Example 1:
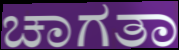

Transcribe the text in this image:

ಚಾಗತಾ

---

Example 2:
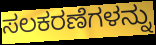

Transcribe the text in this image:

ಸಲಕರಣೆಗಳನ್ನು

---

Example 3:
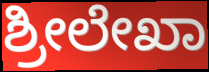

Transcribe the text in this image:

ಶ್ರೀಲೇಖಾ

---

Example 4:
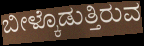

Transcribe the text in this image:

ಬೀಳ್ಕೊಡುತ್ತಿರುವ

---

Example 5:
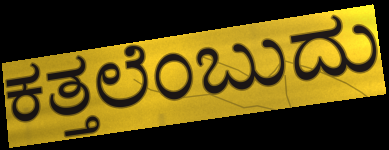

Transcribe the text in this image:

ಕತ್ತಲೆಂಬುದು